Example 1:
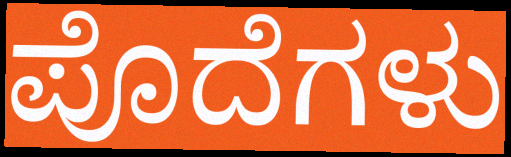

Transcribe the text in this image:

ಪೊದೆಗಳು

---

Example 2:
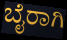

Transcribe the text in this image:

ಬೈರಾಗಿ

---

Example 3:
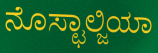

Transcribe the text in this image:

ನೊಸ್ಟಾಲ್ಜಿಯಾ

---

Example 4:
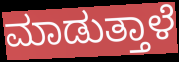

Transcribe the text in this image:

ಮಾಡುತ್ತಾಳೆ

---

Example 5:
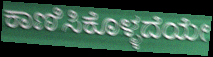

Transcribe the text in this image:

ಕಾಣಿಸಿಕೊಳ್ಳದೆಯೇ